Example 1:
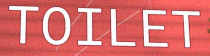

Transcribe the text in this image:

TOILET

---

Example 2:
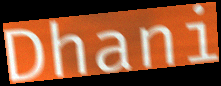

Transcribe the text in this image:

Dhani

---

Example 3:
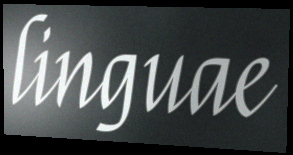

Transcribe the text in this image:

linguae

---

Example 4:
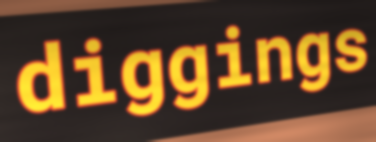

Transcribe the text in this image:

diggings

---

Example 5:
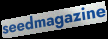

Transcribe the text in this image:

seedmagazine